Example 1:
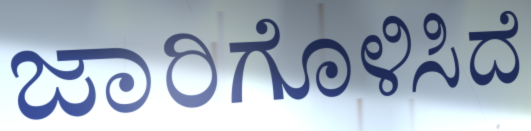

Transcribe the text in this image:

ಜಾರಿಗೊಳಿಸಿದೆ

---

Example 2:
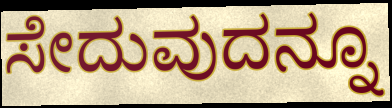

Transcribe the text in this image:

ಸೇದುವುದನ್ನೂ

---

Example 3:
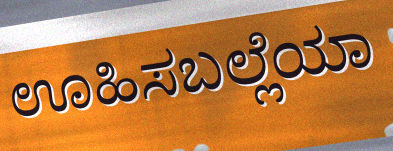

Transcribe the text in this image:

ಊಹಿಸಬಲ್ಲೆಯಾ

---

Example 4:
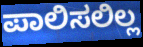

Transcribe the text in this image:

ಪಾಲಿಸಲಿಲ್ಲ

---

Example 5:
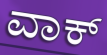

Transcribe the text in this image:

ವಾಕ್